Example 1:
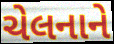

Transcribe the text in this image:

ચેલનાને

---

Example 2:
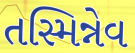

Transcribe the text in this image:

તસ્મિન્નેવ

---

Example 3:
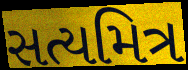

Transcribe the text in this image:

સત્યમિત્ર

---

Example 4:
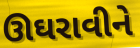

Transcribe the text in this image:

ઊઘરાવીને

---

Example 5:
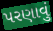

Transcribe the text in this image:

પરણાવું